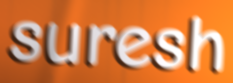
suresh